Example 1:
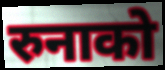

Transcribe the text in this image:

रुनाको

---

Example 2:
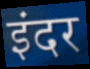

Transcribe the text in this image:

इंदर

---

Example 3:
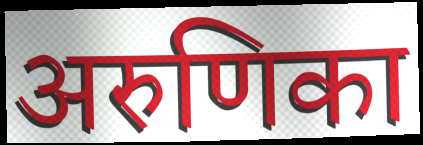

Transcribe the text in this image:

अरुणिका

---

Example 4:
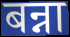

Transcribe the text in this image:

बन्ना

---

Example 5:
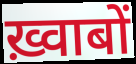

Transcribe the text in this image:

ख़्वाबों